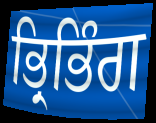
ਭ੍ਰਿਭਿੰਗ